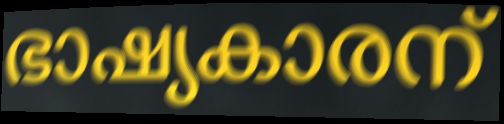
ഭാഷ്യകാരന്